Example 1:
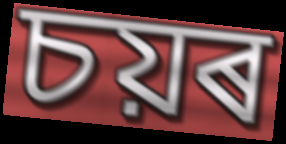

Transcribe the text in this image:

চয়ৰ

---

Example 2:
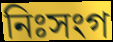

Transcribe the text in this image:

নিঃসংগ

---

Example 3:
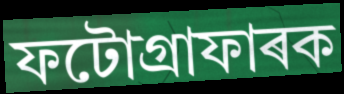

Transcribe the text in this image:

ফটোগ্ৰাফাৰক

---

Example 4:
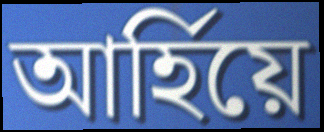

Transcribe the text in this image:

আৰ্হিয়ে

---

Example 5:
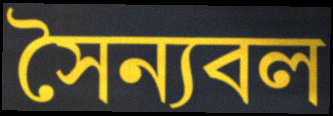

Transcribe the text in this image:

সৈন্যবল